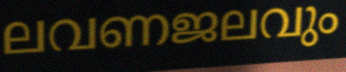
ലവണജലവും